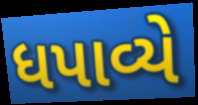
ધપાવ્યે